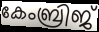
കേംബ്രിജ്